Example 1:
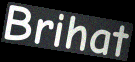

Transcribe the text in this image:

Brihat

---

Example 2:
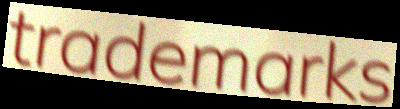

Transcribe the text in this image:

trademarks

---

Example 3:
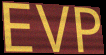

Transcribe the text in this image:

EVP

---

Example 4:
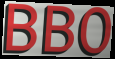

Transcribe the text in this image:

BBO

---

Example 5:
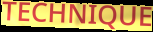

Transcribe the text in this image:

TECHNIQUE